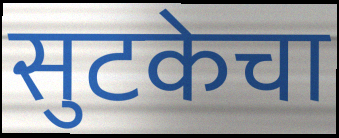
सुटकेचा